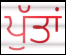
ਪੁੱਤਾਂ